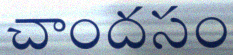
చాందసం